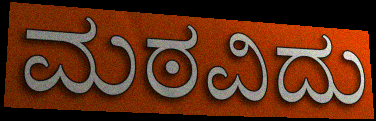
ಮಠವಿದು